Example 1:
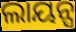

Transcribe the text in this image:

ଲାୟନ୍ସ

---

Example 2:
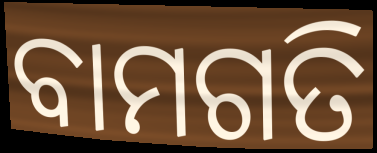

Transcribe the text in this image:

ବାମଗତି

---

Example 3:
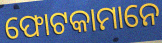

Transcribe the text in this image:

ଫୋଟକାମାନେ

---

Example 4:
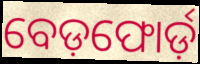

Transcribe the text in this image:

ବେଡ଼ଫୋର୍ଡ଼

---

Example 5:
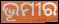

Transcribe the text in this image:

ଭୂମୀର